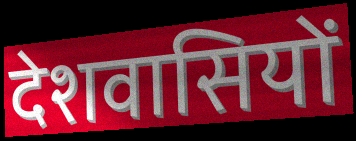
देशवासियों